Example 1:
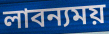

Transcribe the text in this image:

লাবন্যময়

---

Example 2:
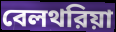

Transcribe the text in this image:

বেলথরিয়া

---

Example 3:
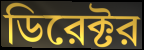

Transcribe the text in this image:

ডিরেক্টর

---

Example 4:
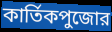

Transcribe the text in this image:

কার্তিকপুজোর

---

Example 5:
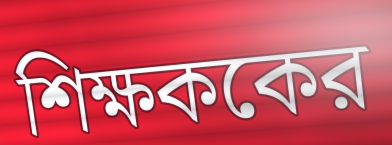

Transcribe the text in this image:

শিক্ষককের